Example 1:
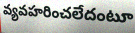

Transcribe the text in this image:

వ్యవహరించలేదంటూ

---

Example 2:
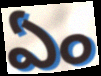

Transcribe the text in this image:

ఏం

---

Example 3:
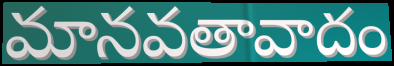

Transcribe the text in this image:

మానవతావాదం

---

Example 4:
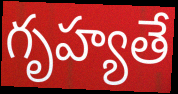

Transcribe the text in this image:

గృహ్యతే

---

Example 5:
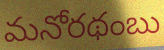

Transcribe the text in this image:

మనోరథంబు